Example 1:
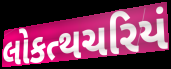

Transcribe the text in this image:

લોકત્થચરિયં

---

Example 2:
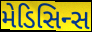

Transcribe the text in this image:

મેડિસિન્સ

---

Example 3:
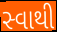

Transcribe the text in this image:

સ્વાથી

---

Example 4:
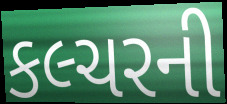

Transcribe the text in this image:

કલ્ચરની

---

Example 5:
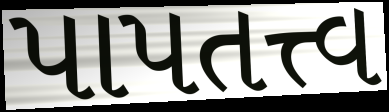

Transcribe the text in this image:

પાપતત્ત્વ